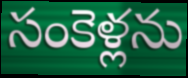
సంకెళ్లను